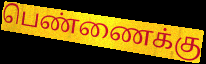
பெண்ணைக்கு